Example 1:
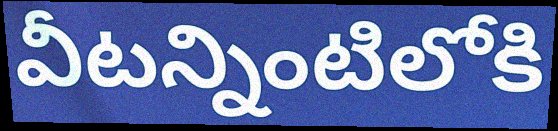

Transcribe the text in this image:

వీటన్నింటిలోకి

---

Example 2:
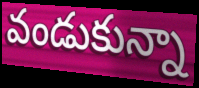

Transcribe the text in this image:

వండుకున్నా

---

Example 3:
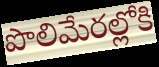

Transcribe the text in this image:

పొలిమేరల్లోకి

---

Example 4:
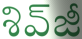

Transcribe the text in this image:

శివ్‌జీ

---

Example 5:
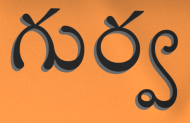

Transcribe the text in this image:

గుర్వ